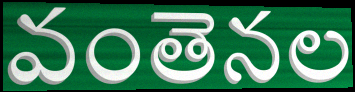
వంతెనల